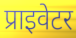
प्राइवेटर